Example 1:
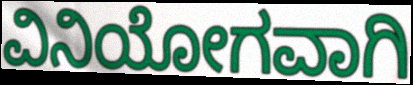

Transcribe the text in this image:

ವಿನಿಯೋಗವಾಗಿ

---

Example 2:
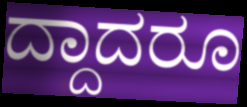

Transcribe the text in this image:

ದ್ದಾದರೂ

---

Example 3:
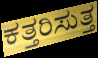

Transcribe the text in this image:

ಕತ್ತರಿಸುತ್ತ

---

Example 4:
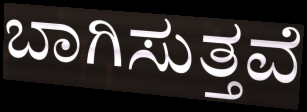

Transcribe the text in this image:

ಬಾಗಿಸುತ್ತವೆ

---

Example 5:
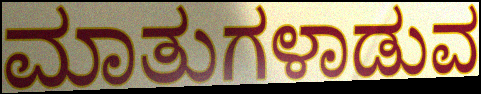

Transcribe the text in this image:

ಮಾತುಗಳಾಡುವ